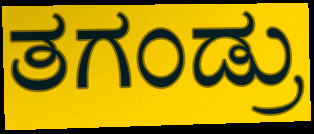
ತಗಂಡ್ರು